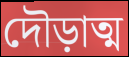
দৌড়াত্ম